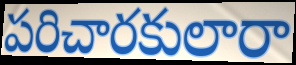
పరిచారకులారా